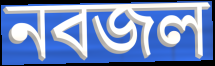
নবজল